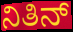
ನಿತಿನ್